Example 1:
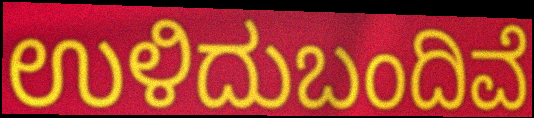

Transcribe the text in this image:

ಉಳಿದುಬಂದಿವೆ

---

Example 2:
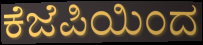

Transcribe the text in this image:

ಕೆಜೆಪಿಯಿಂದ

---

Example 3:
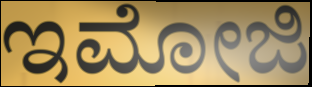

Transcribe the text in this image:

ಇಮೋಜಿ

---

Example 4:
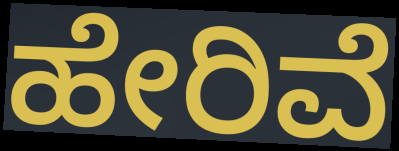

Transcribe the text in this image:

ಹೇರಿವೆ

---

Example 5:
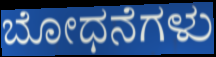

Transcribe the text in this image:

ಬೋಧನೆಗಳು